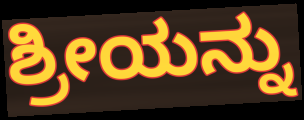
ಶ್ರೀಯನ್ನು